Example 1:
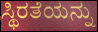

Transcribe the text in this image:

ಸ್ಥಿರತೆಯನ್ನು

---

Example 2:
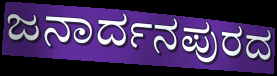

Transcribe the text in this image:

ಜನಾರ್ದನಪುರದ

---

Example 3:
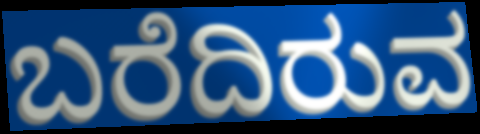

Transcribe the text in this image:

ಬರೆದಿರುವ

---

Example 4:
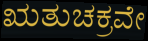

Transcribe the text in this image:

ಋತುಚಕ್ರವೇ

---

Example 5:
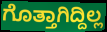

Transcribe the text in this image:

ಗೊತ್ತಾಗಿದ್ದಿಲ್ಲ